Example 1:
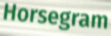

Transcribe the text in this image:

Horsegram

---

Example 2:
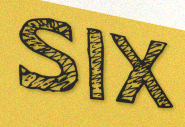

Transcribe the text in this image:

SIX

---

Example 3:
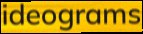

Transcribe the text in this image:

ideograms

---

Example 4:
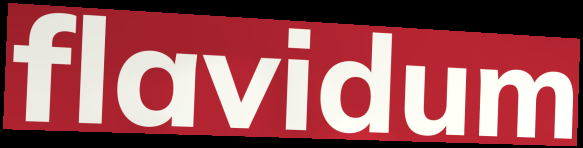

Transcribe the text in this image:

flavidum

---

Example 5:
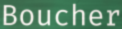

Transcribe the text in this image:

Boucher